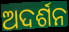
ଅଦର୍ଶନ